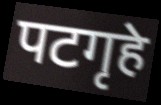
पटगृहे